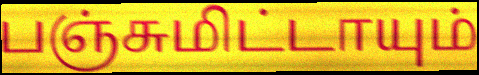
பஞ்சுமிட்டாயும்